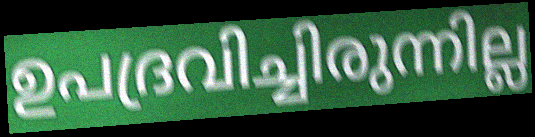
ഉപദ്രവിച്ചിരുന്നില്ല